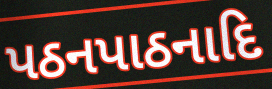
પઠનપાઠનાદિ